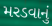
મરડવાનું